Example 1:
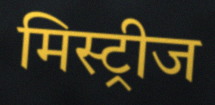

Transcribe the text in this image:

मिस्ट्रीज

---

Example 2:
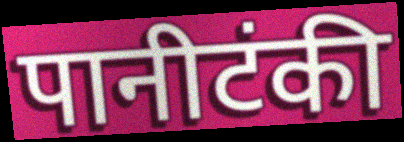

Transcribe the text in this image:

पानीटंकी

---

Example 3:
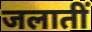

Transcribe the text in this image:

जलातीं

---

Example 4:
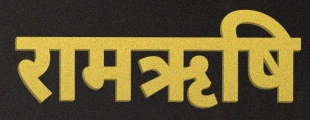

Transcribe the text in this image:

रामऋषि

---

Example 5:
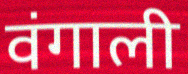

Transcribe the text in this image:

वंगाली